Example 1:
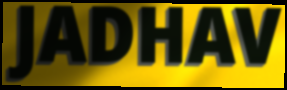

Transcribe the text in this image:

JADHAV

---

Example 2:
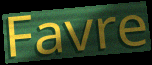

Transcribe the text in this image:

Favre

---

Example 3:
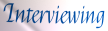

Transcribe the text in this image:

Interviewing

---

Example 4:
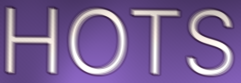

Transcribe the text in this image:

HOTS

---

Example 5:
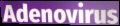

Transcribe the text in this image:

Adenovirus